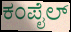
ಕಂಪೈಲ್